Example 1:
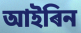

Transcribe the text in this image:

আইৰিন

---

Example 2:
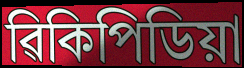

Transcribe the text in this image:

ৱিকিপিডিয়া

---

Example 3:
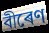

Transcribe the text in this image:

বীৰেণ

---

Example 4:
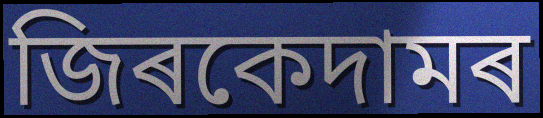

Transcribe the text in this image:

জিৰকেদামৰ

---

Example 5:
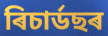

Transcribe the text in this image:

ৰিচাৰ্ডছৰ